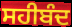
ਸਹੀਬੰਦ